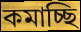
কমাচ্ছি